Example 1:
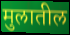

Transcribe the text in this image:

मुलातील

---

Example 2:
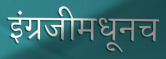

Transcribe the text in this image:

इंग्रजीमधूनच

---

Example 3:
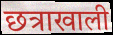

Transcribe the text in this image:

छत्राखाली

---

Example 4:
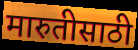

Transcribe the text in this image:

मारुतीसाठी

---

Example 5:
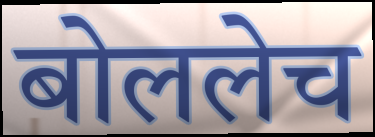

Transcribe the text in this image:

बोललेच